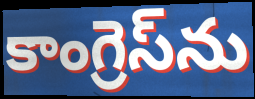
కాంగ్రెస్‌ను